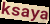
ksaya